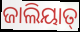
ଜାଲିୟାତ୍